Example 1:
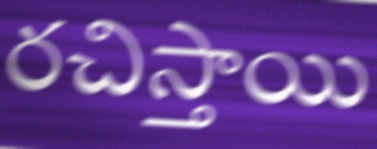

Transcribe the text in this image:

రచిస్తాయి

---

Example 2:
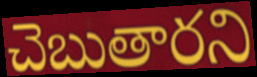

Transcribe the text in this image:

చెబుతారని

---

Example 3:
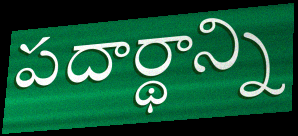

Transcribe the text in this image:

పదార్థాన్ని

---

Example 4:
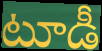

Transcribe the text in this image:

టూడీ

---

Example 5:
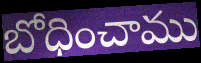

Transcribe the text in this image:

బోధించాము